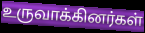
உருவாக்கினர்கள்